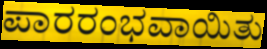
ಪಾರರಂಭವಾಯಿತು